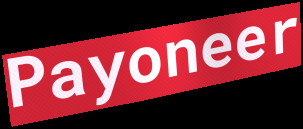
Payoneer